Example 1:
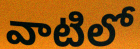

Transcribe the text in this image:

వాటిలో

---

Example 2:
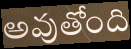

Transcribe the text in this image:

అవుతోంది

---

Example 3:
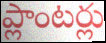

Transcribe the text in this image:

ప్లాంటర్లు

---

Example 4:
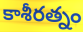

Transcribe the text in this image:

కాశీరత్నం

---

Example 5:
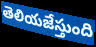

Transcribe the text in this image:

తెలియజేస్తుంది